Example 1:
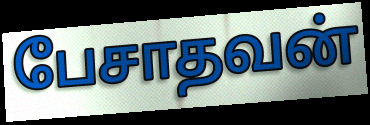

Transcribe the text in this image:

பேசாதவன்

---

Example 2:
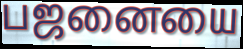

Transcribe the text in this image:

பஜனையை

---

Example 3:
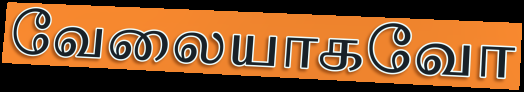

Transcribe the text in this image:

வேலையாகவோ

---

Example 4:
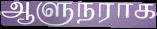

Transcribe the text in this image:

ஆளுநராக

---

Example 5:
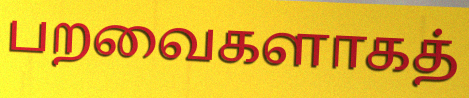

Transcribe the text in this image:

பறவைகளாகத்